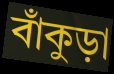
বাঁকুড়া